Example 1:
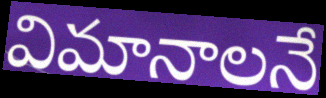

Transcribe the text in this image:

విమానాలనే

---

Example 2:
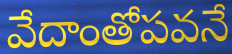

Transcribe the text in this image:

వేదాంతోపవనే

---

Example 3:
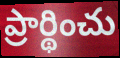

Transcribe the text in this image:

ప్రార్థించు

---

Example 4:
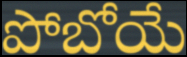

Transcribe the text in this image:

పోబోయే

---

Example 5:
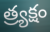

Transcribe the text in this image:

త్ర్యక్షం